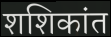
शशिकांत